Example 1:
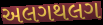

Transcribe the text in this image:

અલગથલગ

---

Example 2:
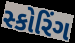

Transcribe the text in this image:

સ્કોરિંગ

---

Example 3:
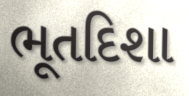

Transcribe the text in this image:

ભૂતદિશા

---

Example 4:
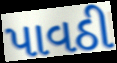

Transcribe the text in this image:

પાવઠી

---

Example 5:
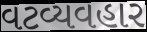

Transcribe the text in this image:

વટવ્યવહાર